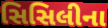
સિસિલીના